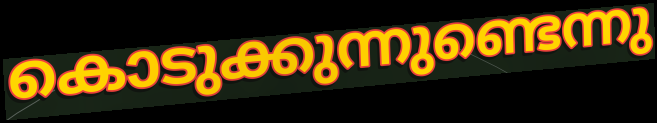
കൊടുക്കുന്നുണ്ടെന്നു